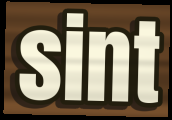
sint